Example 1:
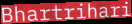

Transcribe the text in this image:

Bhartrihari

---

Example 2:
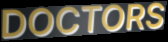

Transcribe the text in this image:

DOCTORS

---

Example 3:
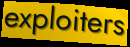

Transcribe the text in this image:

exploiters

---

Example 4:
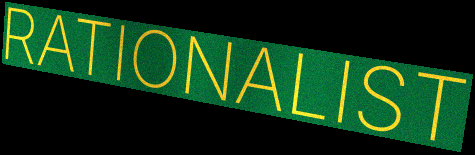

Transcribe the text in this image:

RATIONALIST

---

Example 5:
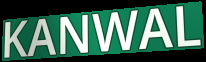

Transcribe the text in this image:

KANWAL